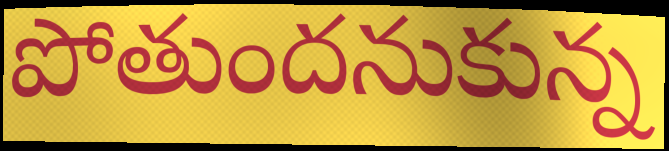
పోతుందనుకున్న